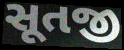
સૂતજી